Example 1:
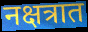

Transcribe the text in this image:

नक्षत्रात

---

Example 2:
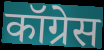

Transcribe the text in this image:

कॉग्रेस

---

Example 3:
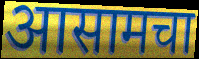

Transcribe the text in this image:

आसामचा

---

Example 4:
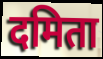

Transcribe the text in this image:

दमिता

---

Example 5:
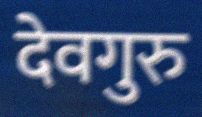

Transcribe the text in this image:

देवगुरु